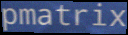
pmatrix